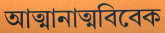
আত্মানাত্মবিবেক